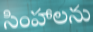
సింహాలను